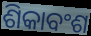
ଶିକାବଂଶ